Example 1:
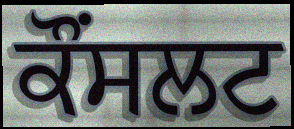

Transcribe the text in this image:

ਕੌਂਸਲਟ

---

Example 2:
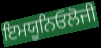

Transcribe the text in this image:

ਇਮਯੂਨਿਓਲੋਜੀ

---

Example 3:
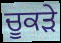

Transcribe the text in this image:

ਚੂਕੜੇ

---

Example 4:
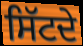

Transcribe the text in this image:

ਸਿੱਟਦੇ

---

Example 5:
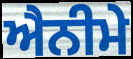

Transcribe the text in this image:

ਐਨੀਮੇ